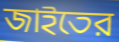
জাইতের